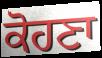
ਕੋਹਣਾ